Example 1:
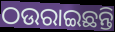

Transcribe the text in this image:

ଠଉରାଇଛନ୍ତି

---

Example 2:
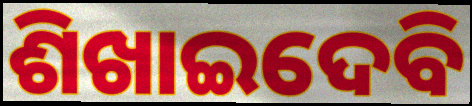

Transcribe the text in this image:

ଶିଖାଇଦେବି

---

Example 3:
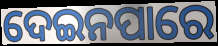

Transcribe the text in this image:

ଦେଇନପାରେ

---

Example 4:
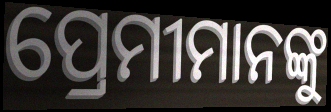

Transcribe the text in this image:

ପ୍ରେମୀମାନଙ୍କୁ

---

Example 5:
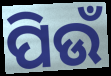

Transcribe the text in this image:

ପିଉଁ